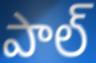
పాల్